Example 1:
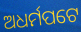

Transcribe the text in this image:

ଅଧର୍ମପଟେ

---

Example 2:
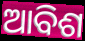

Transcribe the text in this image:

ଆବିଶ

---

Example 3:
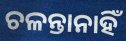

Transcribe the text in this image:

ଚଳନ୍ତାନାହିଁ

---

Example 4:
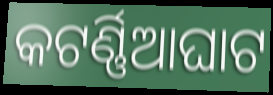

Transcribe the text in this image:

କଟର୍ଣ୍ଣିଆଘାଟ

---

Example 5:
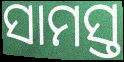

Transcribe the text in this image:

ସାମସ୍ତ